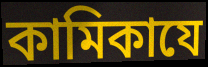
কামিকাযে